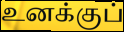
உனக்குப்